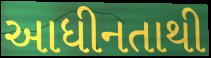
આધીનતાથી